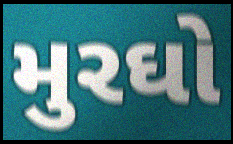
મુરઘો